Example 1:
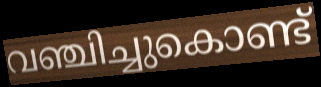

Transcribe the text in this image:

വഞ്ചിച്ചുകൊണ്ട്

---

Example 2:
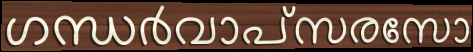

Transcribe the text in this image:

ഗന്ധർവാപ്സരസോ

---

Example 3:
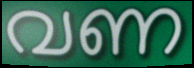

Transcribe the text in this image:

വണ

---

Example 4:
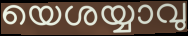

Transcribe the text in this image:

യെശയ്യാവു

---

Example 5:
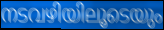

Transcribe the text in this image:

നടവഴിയിലൂടെയും